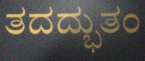
ತದದ್ಭುತಂ